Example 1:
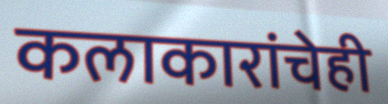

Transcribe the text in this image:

कलाकारांचेही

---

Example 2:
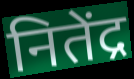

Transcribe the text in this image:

नितेंद्र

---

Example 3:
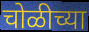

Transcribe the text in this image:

चोळीच्या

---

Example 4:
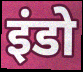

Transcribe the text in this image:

इंडो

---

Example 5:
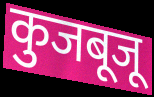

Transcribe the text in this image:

कुजबूजू